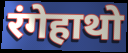
रंगेहाथो